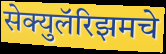
सेक्युलॅरिझमचे